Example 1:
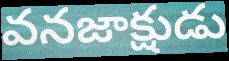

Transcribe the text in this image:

వనజాక్షుడు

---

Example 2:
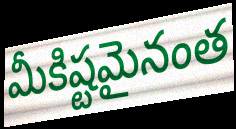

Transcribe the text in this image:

మీకిష్టమైనంత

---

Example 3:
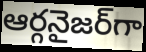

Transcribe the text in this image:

ఆర్గనైజర్‌గా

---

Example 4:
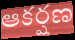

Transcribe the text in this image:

ఆకర్షణ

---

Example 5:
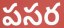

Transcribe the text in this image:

పసర